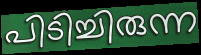
പിടിച്ചിരുന്ന